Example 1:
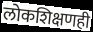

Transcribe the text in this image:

लोकशिक्षणही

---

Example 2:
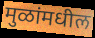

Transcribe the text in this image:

मुळांमधील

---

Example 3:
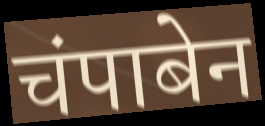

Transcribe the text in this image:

चंपाबेन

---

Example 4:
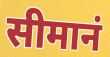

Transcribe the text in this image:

सीमानं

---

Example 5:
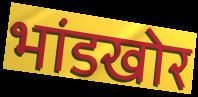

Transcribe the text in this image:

भांडखोर